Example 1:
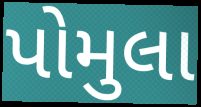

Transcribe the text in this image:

પોમુલા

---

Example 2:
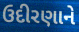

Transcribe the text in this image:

ઉદીરણાને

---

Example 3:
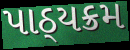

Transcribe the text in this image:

પાઠ્યક્રમ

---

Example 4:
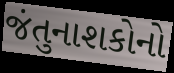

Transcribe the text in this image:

જંતુનાશકોનો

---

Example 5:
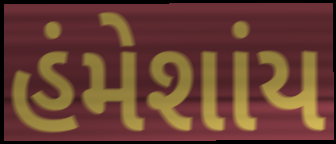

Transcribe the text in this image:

હંમેશાંય